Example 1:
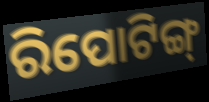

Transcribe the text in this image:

ରିପୋଟିଙ୍ଗ୍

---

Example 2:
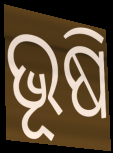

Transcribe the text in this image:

ଭୂଷି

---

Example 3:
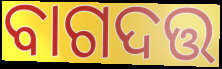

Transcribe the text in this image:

ବାଗଦତ୍ତ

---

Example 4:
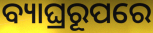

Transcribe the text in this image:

ବ୍ୟାଘ୍ରରୂପରେ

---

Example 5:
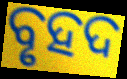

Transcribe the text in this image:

ବୃହଦ